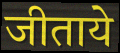
जीताये